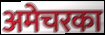
अमेचरका